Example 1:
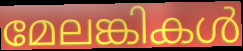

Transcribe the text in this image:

മേലങ്കികൾ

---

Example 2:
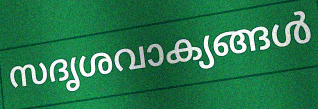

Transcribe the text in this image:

സദൃശവാക്യങ്ങൾ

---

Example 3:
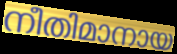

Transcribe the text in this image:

നീതിമാനായ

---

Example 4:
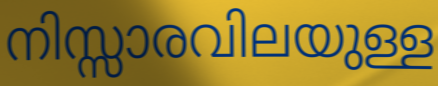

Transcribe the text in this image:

നിസ്സാരവിലയുള്ള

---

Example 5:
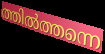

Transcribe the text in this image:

ത്തിൽത്തന്നെ